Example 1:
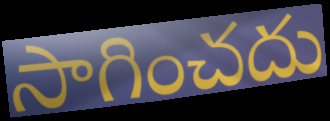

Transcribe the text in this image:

సాగించదు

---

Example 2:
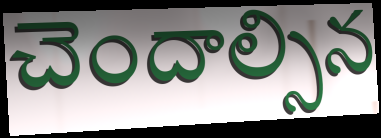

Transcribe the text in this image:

చెందాల్సిన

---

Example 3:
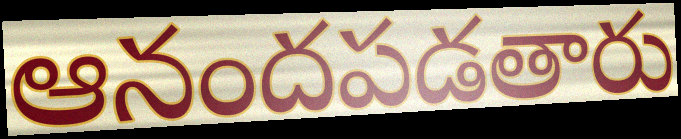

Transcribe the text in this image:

ఆనందపడతారు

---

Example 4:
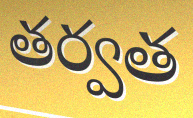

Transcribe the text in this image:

తర్వత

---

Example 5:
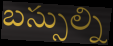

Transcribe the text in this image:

బస్సుల్ని